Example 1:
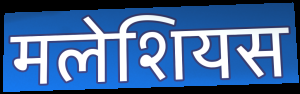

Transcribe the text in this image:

मलेशियस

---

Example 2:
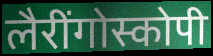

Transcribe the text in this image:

लैरींगोस्कोपी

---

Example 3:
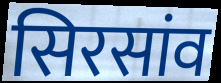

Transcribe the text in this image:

सिरसांव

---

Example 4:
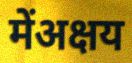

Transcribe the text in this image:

मेंअक्षय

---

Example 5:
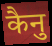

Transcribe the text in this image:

कैनु